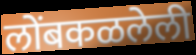
लोंबकळलेली